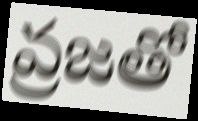
వ్రజతో